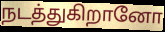
நடத்துகிறானோ